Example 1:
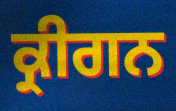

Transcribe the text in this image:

ਕ੍ਰੀਗਨ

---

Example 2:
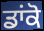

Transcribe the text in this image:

ਡਾਂਕੋ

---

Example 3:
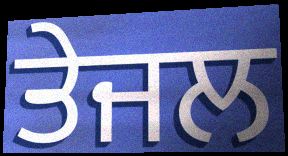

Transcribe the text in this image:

ਤੇਜਲ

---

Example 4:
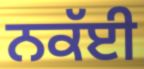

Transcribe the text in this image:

ਨਕੱਈ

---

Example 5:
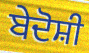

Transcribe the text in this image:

ਬੇਦੋਸ਼ੀ